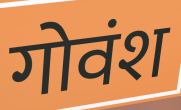
गोवंश